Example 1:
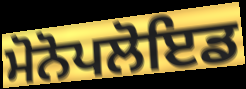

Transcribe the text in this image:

ਮੋਨੋਪਲੋਇਡ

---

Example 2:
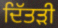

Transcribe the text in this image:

ਦਿੱਤੜੀ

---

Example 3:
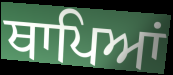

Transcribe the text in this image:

ਥਾਪਿਆਂ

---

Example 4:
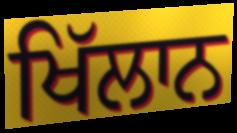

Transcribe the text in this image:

ਖਿੱਲਾਨ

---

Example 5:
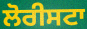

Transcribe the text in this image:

ਲੋਰੀਸਟਾ